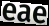
eae